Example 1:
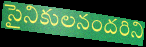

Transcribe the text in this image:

సైనికులనందరిని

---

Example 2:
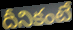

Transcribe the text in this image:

దీనికంటే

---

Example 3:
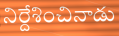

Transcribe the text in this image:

నిర్దేశించినాడు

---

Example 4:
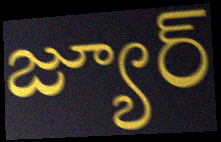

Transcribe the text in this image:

జ్యూర్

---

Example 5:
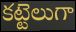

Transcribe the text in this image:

కట్టెలుగా